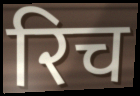
रिच